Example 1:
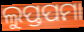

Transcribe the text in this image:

ଲୁପ୍ତପମା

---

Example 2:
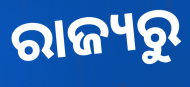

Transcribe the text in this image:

ରାଜ୍ୟରୁ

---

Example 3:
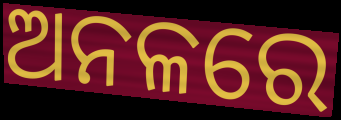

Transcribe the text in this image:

ଅନଳରେ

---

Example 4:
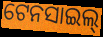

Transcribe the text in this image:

ଟେନସାଇଲ୍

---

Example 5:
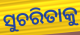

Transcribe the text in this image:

ସୁଚରିତାକୁ